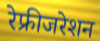
रेफ्रीजरेशन